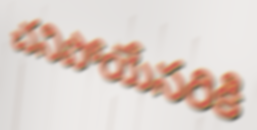
చనిపోయేసరికి